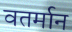
वतर्मान